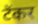
टेंकर